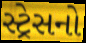
સ્ટ્રેસનો